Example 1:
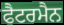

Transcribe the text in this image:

ਫੈਟਰਮੈਨ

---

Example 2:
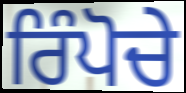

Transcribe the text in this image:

ਰਿੰਪੋਚੇ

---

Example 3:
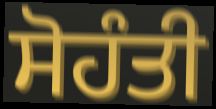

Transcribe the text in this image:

ਸੋਹੰਤੀ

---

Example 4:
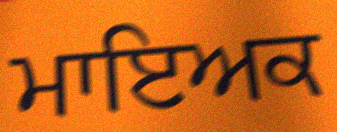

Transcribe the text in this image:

ਮਾਇਅਕ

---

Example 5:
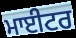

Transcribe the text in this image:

ਮਾਈਟਰ